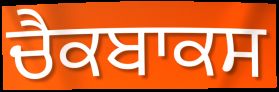
ਚੈਕਬਾਕਸ